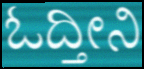
ಓದ್ತೀನಿ